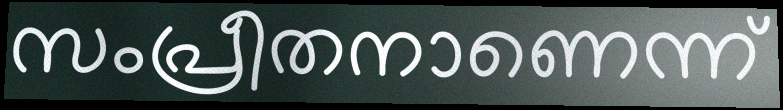
സംപ്രീതനാണെന്ന്